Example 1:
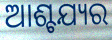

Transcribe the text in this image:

ଆଶ୍ଚଯ୍ୟର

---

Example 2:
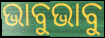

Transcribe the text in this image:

ଭାବୁଭାବୁ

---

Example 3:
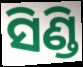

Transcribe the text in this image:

ସିଣ୍ଡି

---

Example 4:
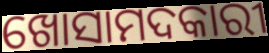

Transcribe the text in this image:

ଖୋସାମଦକାରୀ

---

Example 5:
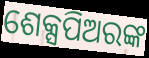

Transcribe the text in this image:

ଶେକ୍ସପିଅରଙ୍କ